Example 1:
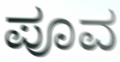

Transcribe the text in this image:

ಪೂವ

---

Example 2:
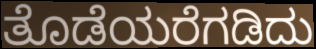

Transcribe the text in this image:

ತೊಡೆಯರೆಗಡಿದು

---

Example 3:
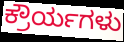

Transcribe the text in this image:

ಕ್ರೌರ್ಯಗಳು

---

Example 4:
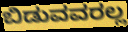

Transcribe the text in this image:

ಬಿಡುವವರಲ್ಲ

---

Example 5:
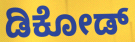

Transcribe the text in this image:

ಡಿಕೋಡ್